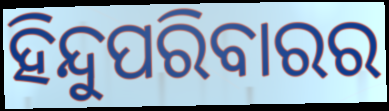
ହିନ୍ଦୁପରିବାରର